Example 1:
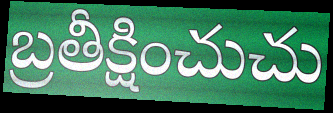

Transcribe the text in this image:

బ్రతీక్షించుచు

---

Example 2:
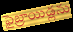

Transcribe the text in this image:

ఫైబ్రాయిడ్లను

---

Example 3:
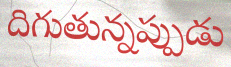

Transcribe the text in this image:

దిగుతున్నప్పుడు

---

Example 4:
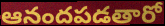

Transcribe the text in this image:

ఆనందపడతారో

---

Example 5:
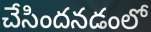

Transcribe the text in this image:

చేసిందనడంలో